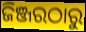
ଜିଞ୍ଜରଠାରୁ